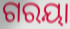
ଗରୟା